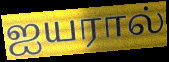
ஐயரால்